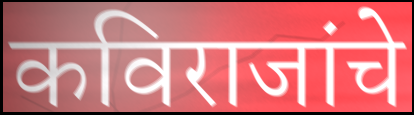
कविराजांचे